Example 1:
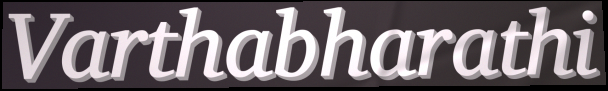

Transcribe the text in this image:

Varthabharathi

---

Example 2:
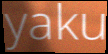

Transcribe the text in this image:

yaku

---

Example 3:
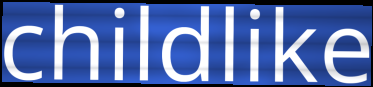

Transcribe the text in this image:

childlike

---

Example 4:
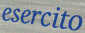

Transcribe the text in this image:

esercito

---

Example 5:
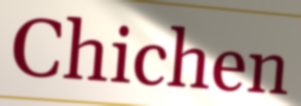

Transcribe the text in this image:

Chichen